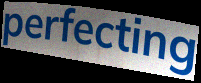
perfecting